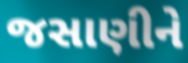
જસાણીને